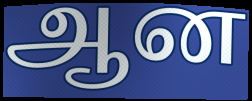
ஆன